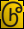
டூ